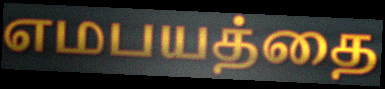
எமபயத்தை